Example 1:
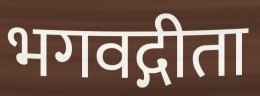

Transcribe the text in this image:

भगवद्गीता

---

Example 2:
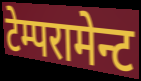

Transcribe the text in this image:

टेम्परामेन्ट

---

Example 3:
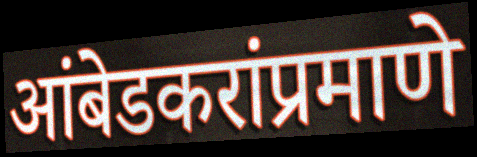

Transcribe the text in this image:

आंबेडकरांप्रमाणे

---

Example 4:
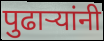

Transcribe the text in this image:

पुढाऱ्यांनी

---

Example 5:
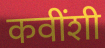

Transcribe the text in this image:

कवींशी